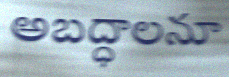
అబద్ధాలనూ